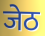
जेठ